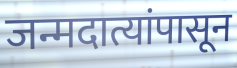
जन्मदात्यांपासून